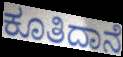
ಕೂತಿದಾನೆ